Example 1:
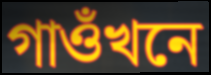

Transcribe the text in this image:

গাওঁখনে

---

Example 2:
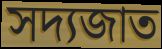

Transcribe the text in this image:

সদ্যজাত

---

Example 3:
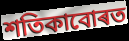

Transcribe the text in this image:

শতিকাবোৰত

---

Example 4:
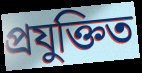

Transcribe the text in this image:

প্ৰযুক্তিত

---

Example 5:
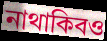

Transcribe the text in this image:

নাথাকিবও